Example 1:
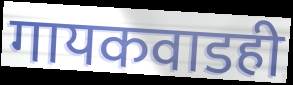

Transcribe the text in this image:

गायकवाडही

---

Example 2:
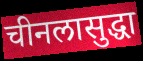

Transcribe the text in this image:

चीनलासुद्धा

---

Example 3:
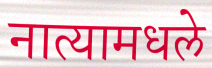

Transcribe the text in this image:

नात्यामधले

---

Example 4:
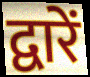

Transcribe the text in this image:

द्वारें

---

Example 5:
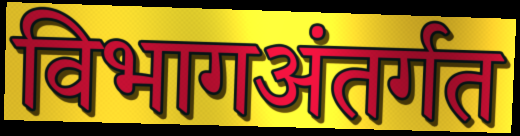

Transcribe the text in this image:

विभागअंतर्गत